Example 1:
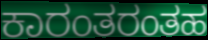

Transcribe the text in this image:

ಕಾರಂತರಂತಹ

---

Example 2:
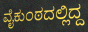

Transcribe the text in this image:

ವೈಕುಂಠದಲ್ಲಿದ್ದ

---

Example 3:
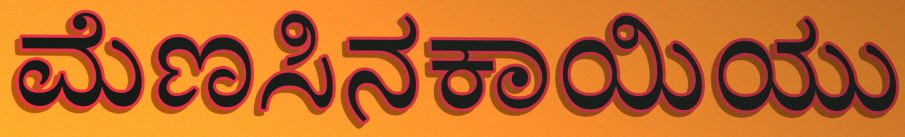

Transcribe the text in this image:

ಮೆಣಸಿನಕಾಯಿಯು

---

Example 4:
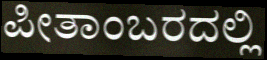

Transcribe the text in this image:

ಪೀತಾಂಬರದಲ್ಲಿ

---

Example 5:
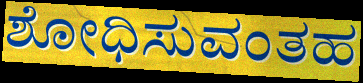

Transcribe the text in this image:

ಶೋಧಿಸುವಂತಹ